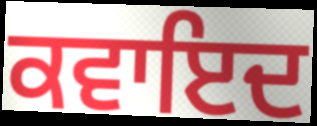
ਕਵਾਇਦ